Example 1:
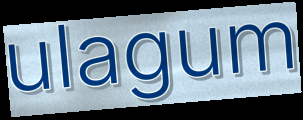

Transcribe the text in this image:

ulagum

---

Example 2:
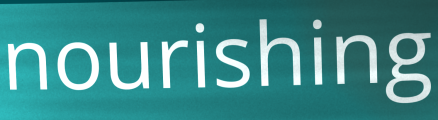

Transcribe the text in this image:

nourishing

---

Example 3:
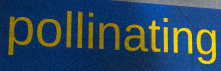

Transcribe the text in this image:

pollinating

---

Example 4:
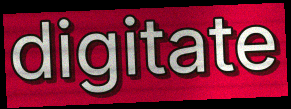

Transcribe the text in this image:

digitate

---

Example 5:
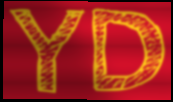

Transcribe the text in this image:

YD